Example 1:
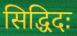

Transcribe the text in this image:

सिद्धिदः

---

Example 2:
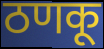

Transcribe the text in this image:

ठणकू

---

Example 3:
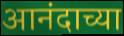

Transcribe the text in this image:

आनंदाच्या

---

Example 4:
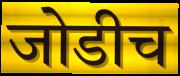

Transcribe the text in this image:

जोडीच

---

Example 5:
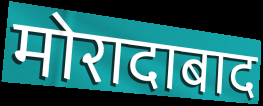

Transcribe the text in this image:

मोरादाबाद